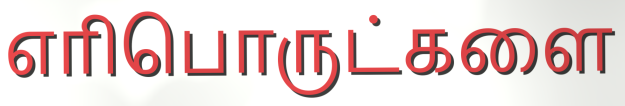
எரிபொருட்களை